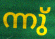
ന്നു്